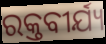
ରକ୍ତବୀର୍ଯ୍ୟ